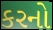
કરનો